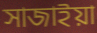
সাজাইয়া